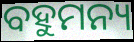
ବହୁମନ୍ୟ